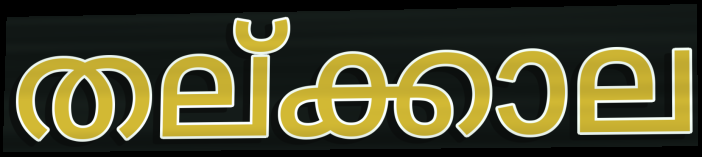
തല്ക്കാല